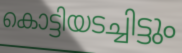
കൊട്ടിയടച്ചിട്ടും